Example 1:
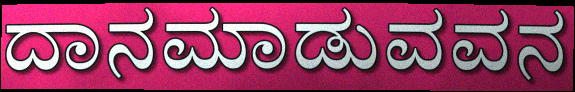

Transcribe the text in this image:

ದಾನಮಾಡುವವನ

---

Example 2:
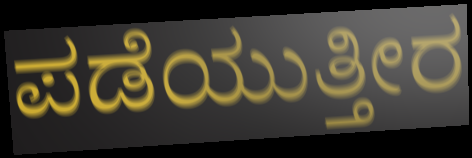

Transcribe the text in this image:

ಪಡೆಯುತ್ತೀರ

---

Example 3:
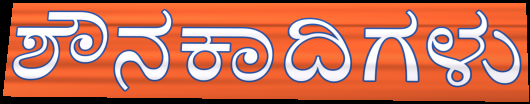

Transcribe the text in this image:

ಶೌನಕಾದಿಗಳು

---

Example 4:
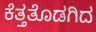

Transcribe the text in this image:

ಕೆತ್ತತೊಡಗಿದ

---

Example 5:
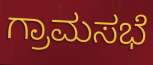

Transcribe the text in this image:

ಗ್ರಾಮಸಭೆ